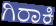
ಗಿರಾಕಿ